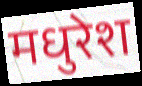
मधुरेश